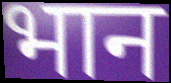
भान